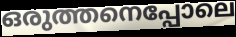
ഒരുത്തനെപ്പോലെ